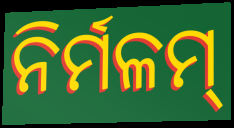
ନିର୍ମଳମ୍